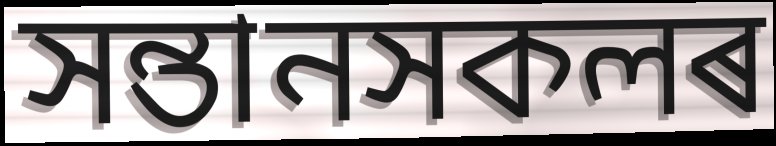
সন্তানসকলৰ